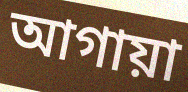
আগায়া